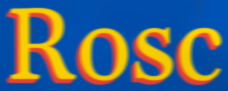
Rosc